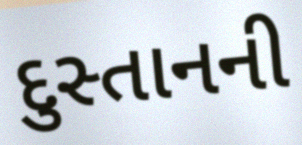
દુસ્તાનની